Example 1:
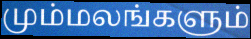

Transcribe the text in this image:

மும்மலங்களும்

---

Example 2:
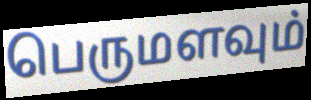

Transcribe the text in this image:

பெருமளவும்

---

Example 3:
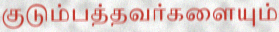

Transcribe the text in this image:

குடும்பத்தவர்களையும்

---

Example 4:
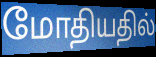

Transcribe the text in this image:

மோதியதில்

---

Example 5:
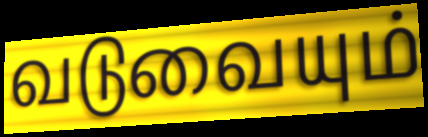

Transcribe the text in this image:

வடுவையும்